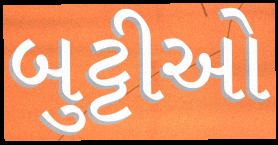
બુટ્ટીઓ